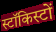
स्टॉकिस्टों